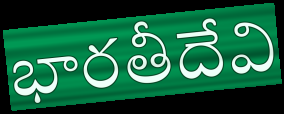
భారతీదేవి